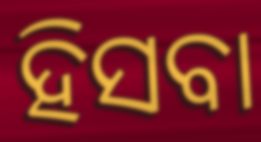
ହିସବା